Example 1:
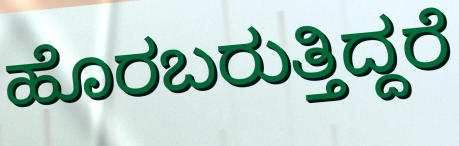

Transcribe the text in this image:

ಹೊರಬರುತ್ತಿದ್ದರೆ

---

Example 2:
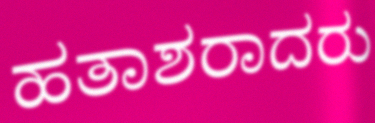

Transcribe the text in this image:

ಹತಾಶರಾದರು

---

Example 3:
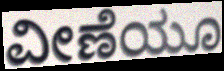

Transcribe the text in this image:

ವೀಣೆಯೂ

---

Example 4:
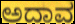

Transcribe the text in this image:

ಅದಾವ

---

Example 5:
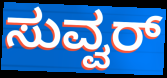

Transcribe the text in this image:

ಸುವ್ವರ್